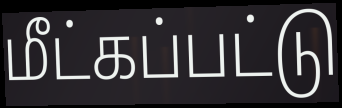
மீட்கப்பட்டு